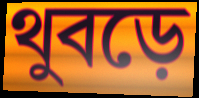
থুবড়ে